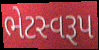
ભેટસ્વરૂપ